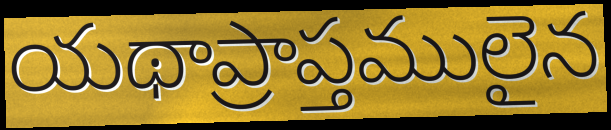
యథాప్రాప్తములైన